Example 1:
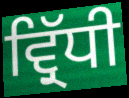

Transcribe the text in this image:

ਵ੍ਰਿੱਧੀ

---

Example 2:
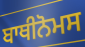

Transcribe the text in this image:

ਬਾਥੀਨੋਮਸ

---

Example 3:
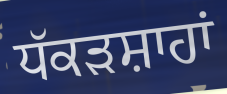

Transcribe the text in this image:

ਧੱਕੜਸ਼ਾਹਾਂ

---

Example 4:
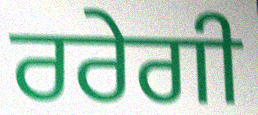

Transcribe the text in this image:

ਰਰੇਗੀ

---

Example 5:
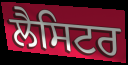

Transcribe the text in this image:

ਲੈਸਿਟਰ